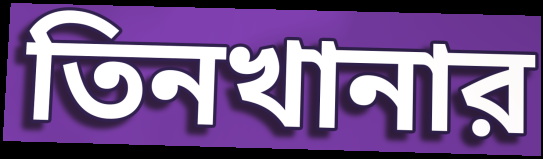
তিনখানার